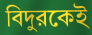
বিদুরকেই